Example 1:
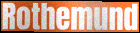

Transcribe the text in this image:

Rothemund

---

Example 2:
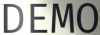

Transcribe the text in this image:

DEMO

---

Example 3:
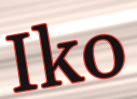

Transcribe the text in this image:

Iko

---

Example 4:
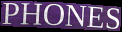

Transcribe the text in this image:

PHONES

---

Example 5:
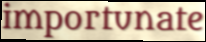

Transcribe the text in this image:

importunate